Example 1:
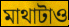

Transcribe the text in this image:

মাথাটাও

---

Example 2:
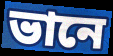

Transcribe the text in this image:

ভানে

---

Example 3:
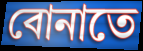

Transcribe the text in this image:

বোনাতে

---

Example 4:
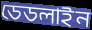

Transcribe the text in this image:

ডেডলাইন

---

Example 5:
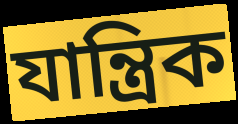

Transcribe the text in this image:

যান্ত্রিক